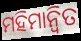
ମହିମାନ୍ୱିତ